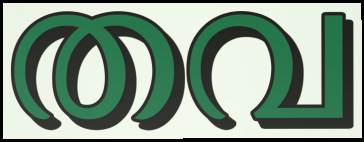
തവ